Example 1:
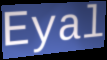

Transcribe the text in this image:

Eyal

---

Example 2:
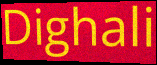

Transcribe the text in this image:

Dighali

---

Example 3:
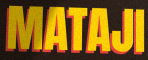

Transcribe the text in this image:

MATAJI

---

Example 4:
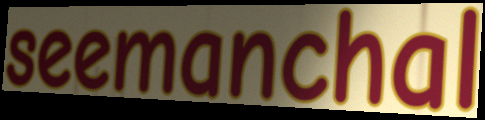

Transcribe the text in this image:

seemanchal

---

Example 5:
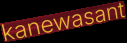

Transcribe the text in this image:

kanewasant